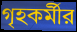
গৃহকর্মীর